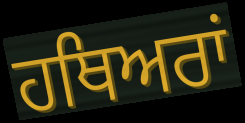
ਹਥਿਅਰਾਂ